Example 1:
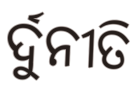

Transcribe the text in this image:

ର୍ଦୁନୀତି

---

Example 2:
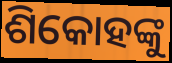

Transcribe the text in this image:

ଶିକୋହଙ୍କୁ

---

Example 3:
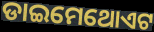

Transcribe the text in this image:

ଡାଇମେଥୋଏଟ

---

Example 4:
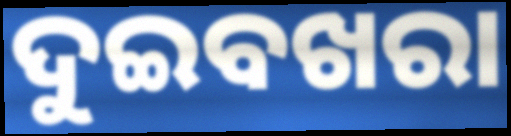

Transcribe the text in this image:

ଦୁଇବଖରା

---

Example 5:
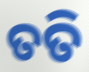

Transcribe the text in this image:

ତତି